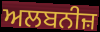
ਅਲਬਨੀਜ਼